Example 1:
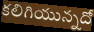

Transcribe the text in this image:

కలిగియున్నదో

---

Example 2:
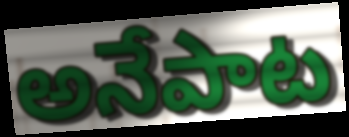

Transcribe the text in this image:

అనేపాట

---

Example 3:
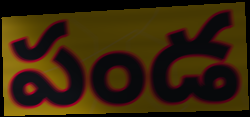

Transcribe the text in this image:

పండ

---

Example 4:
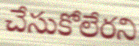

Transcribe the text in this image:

చేసుకోలేరని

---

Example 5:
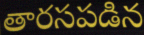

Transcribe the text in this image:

తారసపడిన